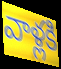
వాళ్లకి